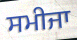
ਸਮੀਜਾ